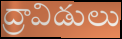
ద్రావిడులు